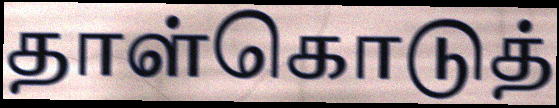
தாள்கொடுத்